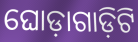
ଘୋଡ଼ାଗାଡ଼ିଟି